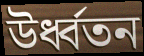
উর্ধ্বতন